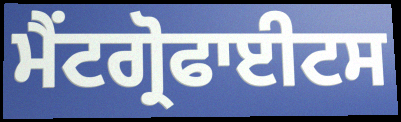
ਮੈਂਟਗ੍ਰੋਫਾਈਟਸ